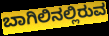
ಬಾಗಿಲಿನಲ್ಲಿರುವ